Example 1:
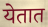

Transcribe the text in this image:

येतात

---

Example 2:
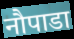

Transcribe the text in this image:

नौपाडा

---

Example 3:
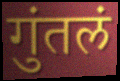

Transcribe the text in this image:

गुंतलं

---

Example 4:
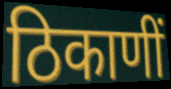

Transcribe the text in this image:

ठिकाणीं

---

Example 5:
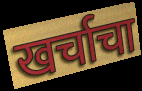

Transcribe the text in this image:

खर्चाचा